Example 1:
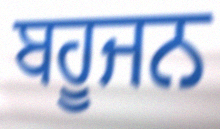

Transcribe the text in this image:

ਬਹੂਜਨ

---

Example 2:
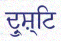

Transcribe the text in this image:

ਦ੍ਰੁਸ਼੍ਟਿ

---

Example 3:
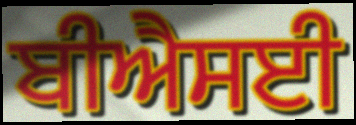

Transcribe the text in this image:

ਬੀਐਸਈ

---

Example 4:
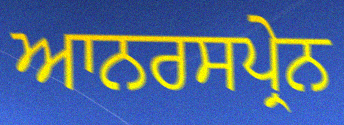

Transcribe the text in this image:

ਆਨਰਸਪ੍ਰੇਨ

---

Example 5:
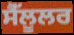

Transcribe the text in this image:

ਸੈੱਲੂਲਰ